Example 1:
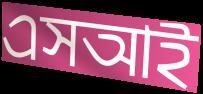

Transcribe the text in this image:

এসআই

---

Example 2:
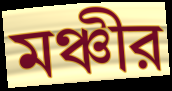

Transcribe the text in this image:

মঞ্চীর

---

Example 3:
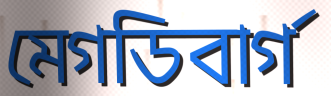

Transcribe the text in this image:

মেগডিবার্গ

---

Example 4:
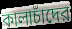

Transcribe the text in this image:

কালাচাঁদের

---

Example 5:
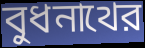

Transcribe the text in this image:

বুধনাথের